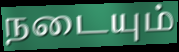
நடையும்